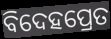
ବିଦେହପ୍ରେତ